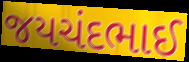
જયચંદભાઈ